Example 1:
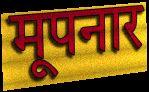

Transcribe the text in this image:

मूपनार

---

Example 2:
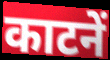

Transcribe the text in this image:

काटनें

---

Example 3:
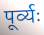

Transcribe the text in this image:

पूर्व्यः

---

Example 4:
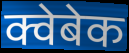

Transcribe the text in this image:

क्वेबेक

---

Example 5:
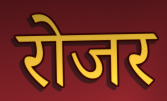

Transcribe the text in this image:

रोजर